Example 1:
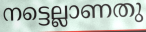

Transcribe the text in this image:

നട്ടെല്ലാണതു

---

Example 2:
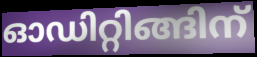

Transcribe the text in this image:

ഓഡിറ്റിങ്ങിന്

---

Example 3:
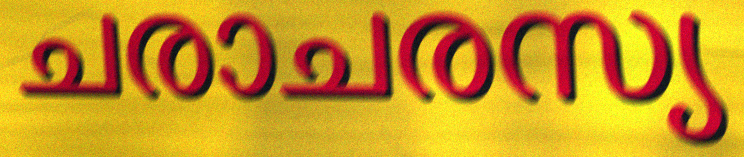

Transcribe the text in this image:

ചരാചരസ്യ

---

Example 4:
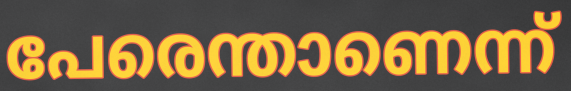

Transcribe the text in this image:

പേരെന്താണെന്ന്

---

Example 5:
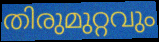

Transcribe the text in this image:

തിരുമുറ്റവും